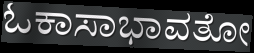
ಓಕಾಸಾಭಾವತೋ